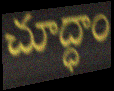
చూద్ధాం